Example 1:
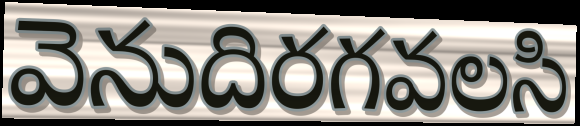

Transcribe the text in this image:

వెనుదిరగవలసి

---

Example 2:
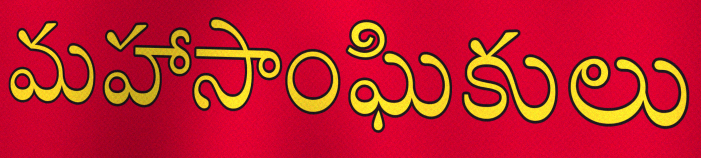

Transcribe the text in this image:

మహాసాంఘికులు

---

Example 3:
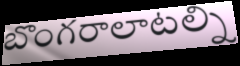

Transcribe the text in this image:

బొంగరాలాటల్ని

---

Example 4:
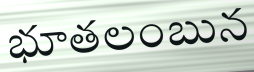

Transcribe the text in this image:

భూతలంబున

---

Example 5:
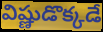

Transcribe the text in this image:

విష్ణుడొక్కడే